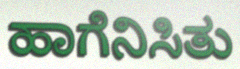
ಹಾಗೆನಿಸಿತು